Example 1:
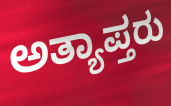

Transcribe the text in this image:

ಅತ್ಯಾಪ್ತರು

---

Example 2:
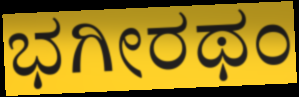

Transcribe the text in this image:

ಭಗೀರಥಂ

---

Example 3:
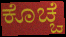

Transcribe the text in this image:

ಕೊಚ್ಚೆ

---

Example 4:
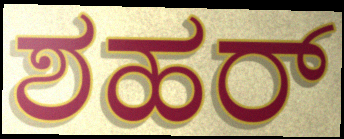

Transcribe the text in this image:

ಶಹರ್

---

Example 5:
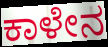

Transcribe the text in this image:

ಕಾಳೇನ